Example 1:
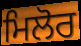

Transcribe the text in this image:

ਮਿਲੋਰ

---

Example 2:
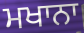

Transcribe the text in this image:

ਮਖਾਨਾ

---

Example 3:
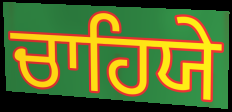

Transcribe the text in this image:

ਚਾਹਿਯੇ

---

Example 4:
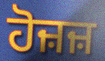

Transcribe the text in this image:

ਹੋਜ਼ਜ਼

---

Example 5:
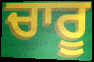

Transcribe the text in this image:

ਚਾਰੂ